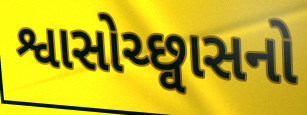
શ્વાસોચ્છ્વાસનો